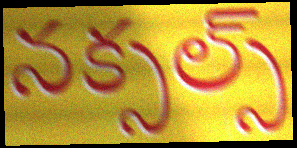
నక్సల్స్